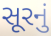
સૂરનું